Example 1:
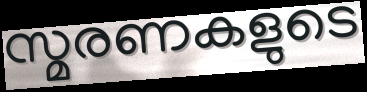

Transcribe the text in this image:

സ്മരണകളുടെ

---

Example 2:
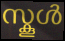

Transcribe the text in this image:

സ്കൂൾ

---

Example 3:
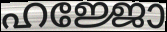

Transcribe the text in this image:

ഹജ്ജോ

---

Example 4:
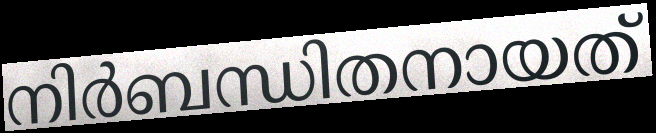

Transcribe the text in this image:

നിർബന്ധിതനായത്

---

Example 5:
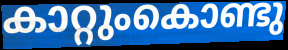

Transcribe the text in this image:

കാറ്റുംകൊണ്ടു